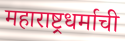
महाराष्ट्रधर्माची